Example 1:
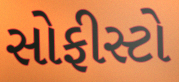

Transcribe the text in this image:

સોફીસ્ટો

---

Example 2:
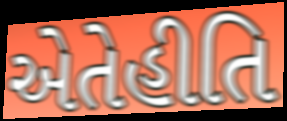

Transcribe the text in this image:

એતેહીતિ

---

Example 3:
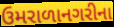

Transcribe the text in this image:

ઉમરાળાનગરીના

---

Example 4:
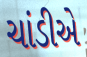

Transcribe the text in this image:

ચાંડીએ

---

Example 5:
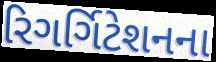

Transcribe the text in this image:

રિગર્ગિટેશનના